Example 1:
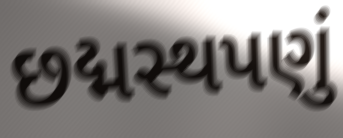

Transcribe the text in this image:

છદ્મસ્થપણું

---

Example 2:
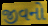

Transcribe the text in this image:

જીવનો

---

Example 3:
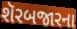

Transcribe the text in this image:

શૅરબજારના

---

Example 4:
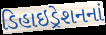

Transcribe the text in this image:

ડિહાઇડ્રેશનનાં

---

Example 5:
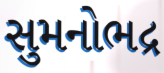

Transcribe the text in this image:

સુમનોભદ્ર